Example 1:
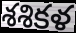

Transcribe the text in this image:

శశికళ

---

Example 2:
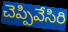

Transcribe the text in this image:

చెప్పివేసిరి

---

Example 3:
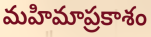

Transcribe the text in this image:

మహిమాప్రకాశం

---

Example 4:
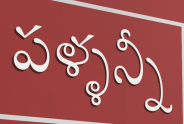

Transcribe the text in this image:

పళ్ళన్నీ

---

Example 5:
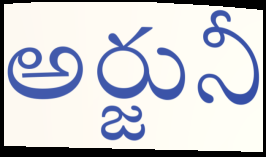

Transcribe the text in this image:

అర్జునీ